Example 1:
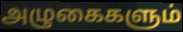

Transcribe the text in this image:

அழுகைகளும்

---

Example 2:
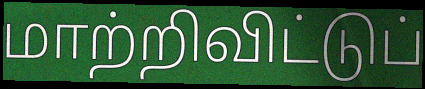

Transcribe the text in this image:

மாற்றிவிட்டுப்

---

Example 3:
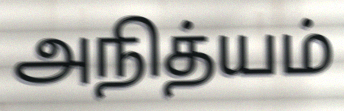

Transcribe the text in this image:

அநித்யம்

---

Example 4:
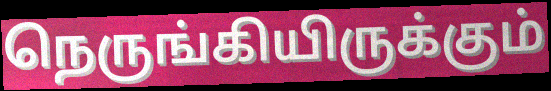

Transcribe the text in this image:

நெருங்கியிருக்கும்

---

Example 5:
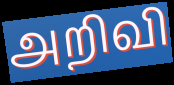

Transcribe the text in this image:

அறிவி